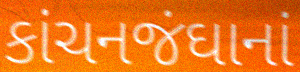
કાંચનજંઘાનાં